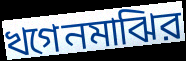
খগেনমাঝির